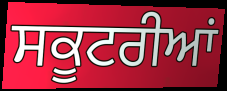
ਸਕੂਟਰੀਆਂ